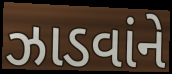
ઝાડવાંને